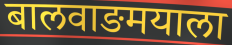
बालवाङमयाला